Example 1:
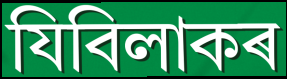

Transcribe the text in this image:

যিবিলাকৰ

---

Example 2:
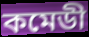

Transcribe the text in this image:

কমেডী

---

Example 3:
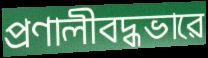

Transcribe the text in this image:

প্ৰণালীবদ্ধভাৱে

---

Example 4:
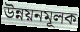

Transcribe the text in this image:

উন্নয়নমূলক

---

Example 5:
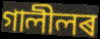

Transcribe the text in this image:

গালীলৰ